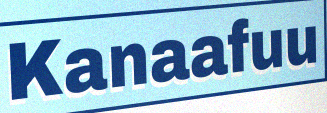
Kanaafuu